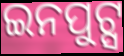
ଇନପୁଟ୍ସ